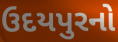
ઉદયપુરનો